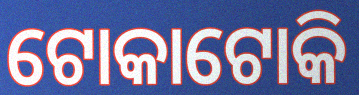
ଟୋକାଟୋକି